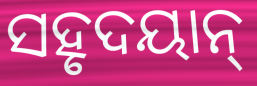
ସହୃଦୟାନ୍